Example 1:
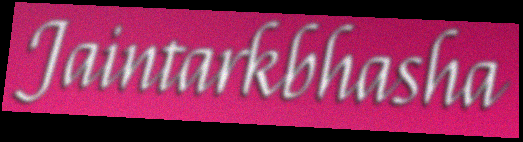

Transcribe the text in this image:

Jaintarkbhasha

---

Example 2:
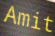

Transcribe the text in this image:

Amit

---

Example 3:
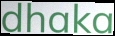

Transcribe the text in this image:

dhaka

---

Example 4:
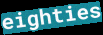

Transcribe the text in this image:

eighties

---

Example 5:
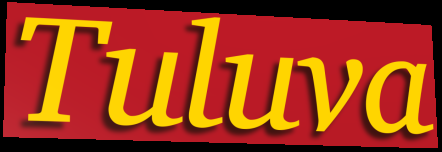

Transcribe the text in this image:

Tuluva